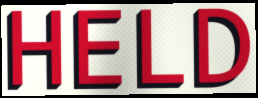
HELD